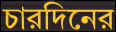
চারদিনের